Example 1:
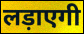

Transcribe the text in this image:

लड़ाएगी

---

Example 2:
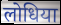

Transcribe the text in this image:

लोधिया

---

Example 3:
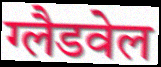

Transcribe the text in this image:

ग्लैडवेल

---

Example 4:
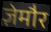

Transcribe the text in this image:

ज़ेमौर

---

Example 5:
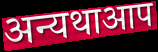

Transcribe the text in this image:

अन्यथाआप